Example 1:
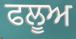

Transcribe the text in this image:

ਫਲੂਅ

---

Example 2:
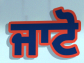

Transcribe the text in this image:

ਜਾਟੋ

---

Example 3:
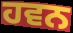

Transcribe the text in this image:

ਹਵਨ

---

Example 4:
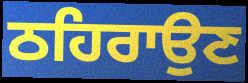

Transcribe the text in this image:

ਠਹਿਰਾਉਣ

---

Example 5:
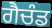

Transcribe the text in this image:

ਗੈਚੰਡ